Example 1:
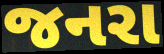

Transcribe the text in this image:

જનરા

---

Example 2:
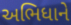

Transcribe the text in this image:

અભિધાને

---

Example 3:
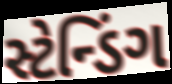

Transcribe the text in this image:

સ્ટેન્ડિંગ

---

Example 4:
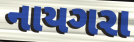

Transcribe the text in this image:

નાયગરા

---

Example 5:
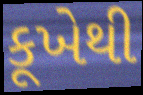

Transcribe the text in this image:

કૂખેથી